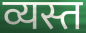
व्‍यस्‍त